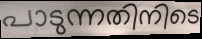
പാടുന്നതിനിടെ